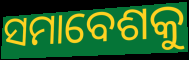
ସମାବେଶକୁ